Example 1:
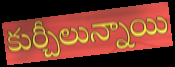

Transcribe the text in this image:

కుర్చీలున్నాయి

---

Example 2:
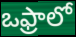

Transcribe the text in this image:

ఒఫ్రాలో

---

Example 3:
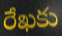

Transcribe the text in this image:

రేఖకు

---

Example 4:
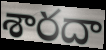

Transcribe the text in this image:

శారదా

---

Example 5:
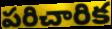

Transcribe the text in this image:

పరిచారిక